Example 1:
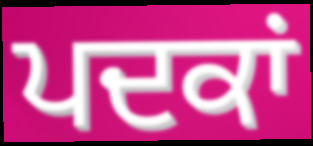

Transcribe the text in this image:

ਪਦਕਾਂ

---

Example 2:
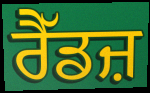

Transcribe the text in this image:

ਰੈੱਡਜ਼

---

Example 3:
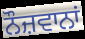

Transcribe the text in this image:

ਨੌਜ਼ਵਾਨਾਂ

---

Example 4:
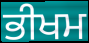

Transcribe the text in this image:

ਭੀਖਮ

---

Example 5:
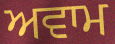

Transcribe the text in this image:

ਅਵਾਮ